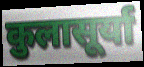
कुलासूर्या